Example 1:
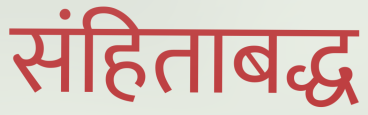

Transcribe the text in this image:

संहिताबद्ध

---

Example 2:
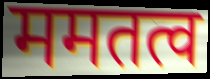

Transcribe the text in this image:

ममतत्व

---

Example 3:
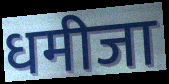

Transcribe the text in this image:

धमीजा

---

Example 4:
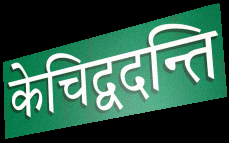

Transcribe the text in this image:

केचिद्वदन्ति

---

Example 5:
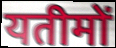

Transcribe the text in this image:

यतीमों